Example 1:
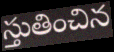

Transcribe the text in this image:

స్తుతించిన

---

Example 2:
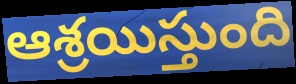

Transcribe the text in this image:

ఆశ్రయిస్తుంది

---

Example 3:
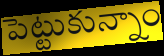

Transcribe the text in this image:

పెట్టుకున్నాం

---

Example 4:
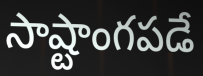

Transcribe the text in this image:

సాష్టాంగపడే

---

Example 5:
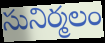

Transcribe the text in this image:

సునిర్మలం